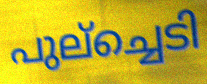
പുല്ച്ചെടി